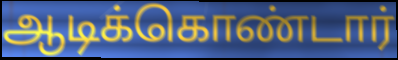
ஆடிக்கொண்டார்